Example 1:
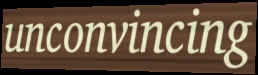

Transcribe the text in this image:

unconvincing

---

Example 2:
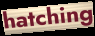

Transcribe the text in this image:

hatching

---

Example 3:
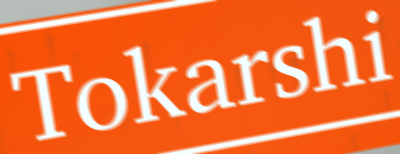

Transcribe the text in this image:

Tokarshi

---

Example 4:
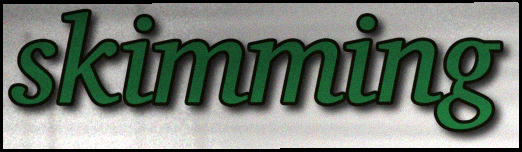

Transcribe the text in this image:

skimming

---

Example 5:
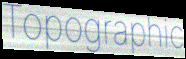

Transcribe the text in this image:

Topographic